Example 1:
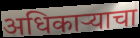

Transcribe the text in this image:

अधिकार्‍याचा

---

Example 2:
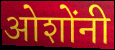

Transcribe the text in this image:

ओशोंनी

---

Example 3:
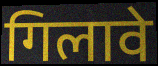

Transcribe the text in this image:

गिलावे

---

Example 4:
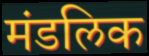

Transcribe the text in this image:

मंडलिक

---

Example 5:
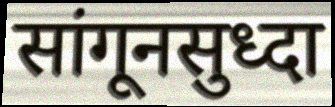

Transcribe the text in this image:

सांगूनसुध्दा